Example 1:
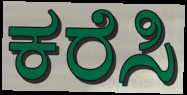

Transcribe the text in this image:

ಕರೆಸಿ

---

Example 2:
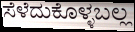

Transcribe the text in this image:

ಸೆಳೆದುಕೊಳ್ಳಬಲ್ಲ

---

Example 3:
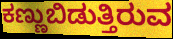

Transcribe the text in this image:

ಕಣ್ಣುಬಿಡುತ್ತಿರುವ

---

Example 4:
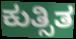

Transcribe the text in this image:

ಕುತ್ಸಿತ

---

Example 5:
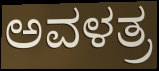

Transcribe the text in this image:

ಅವಳತ್ರ